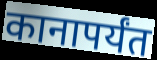
कानापर्यंत